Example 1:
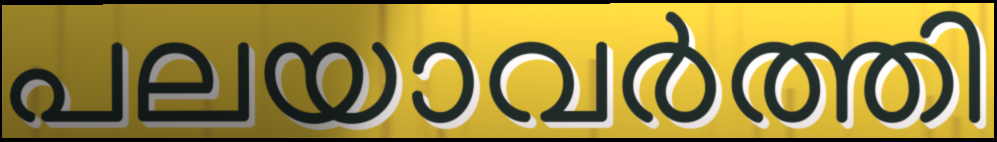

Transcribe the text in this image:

പലയാവർത്തി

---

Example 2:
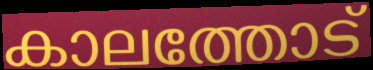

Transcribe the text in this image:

കാലത്തോട്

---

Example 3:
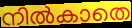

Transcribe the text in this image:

നിൽകാതെ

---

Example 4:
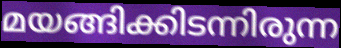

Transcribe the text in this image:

മയങ്ങിക്കിടന്നിരുന്ന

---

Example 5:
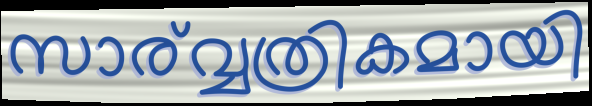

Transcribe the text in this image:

സാര്വ്വത്രികമായി